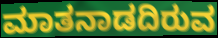
ಮಾತನಾಡದಿರುವ